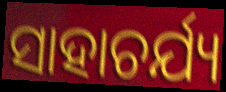
ସାହାଚର୍ଯ୍ୟ